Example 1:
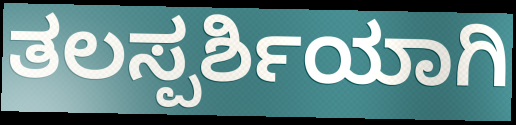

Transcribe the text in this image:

ತಲಸ್ಪರ್ಶಿಯಾಗಿ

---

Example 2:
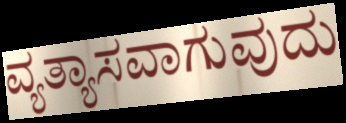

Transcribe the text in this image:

ವ್ಯತ್ಯಾಸವಾಗುವುದು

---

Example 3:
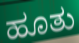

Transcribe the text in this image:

ಹೂತು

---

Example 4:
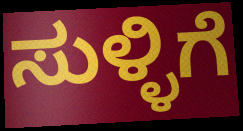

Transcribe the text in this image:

ಸುಳ್ಳಿಗೆ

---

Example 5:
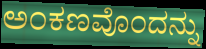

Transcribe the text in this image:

ಅಂಕಣವೊಂದನ್ನು